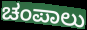
ಚಂಪಾಲು